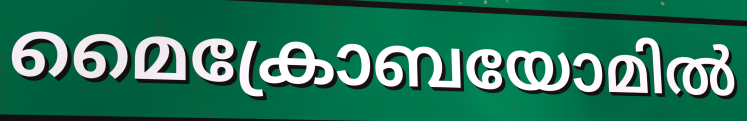
മൈക്രോബയോമിൽ